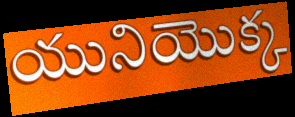
యునియొక్క